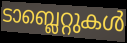
ടാബ്ലെറ്റുകൾ